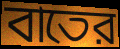
বাতের